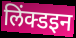
लिंक्डइन